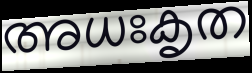
അധഃകൃത